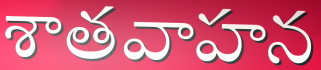
శాతవాహన